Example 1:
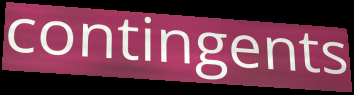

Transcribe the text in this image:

contingents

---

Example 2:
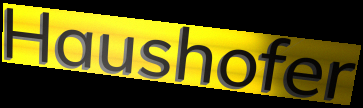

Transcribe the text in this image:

Haushofer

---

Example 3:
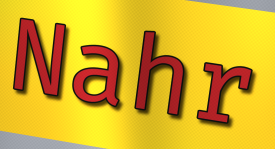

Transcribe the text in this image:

Nahr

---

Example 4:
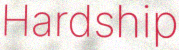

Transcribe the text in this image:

Hardship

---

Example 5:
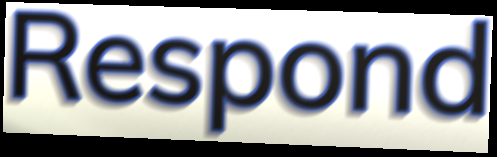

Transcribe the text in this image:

Respond